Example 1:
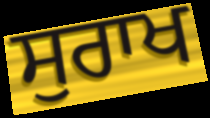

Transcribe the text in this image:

ਸੁਰਾਖ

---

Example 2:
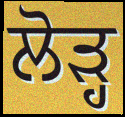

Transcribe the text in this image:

ਲੋੜ੍ਹ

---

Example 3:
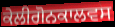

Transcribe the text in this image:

ਕੇਲੀਗੋਨਕਾਲਵਸ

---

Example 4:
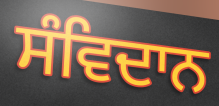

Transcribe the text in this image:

ਸੰਵਿਦਾਨ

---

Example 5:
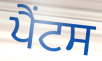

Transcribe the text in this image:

ਪੈਂਟਸ